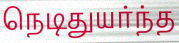
நெடிதுயர்ந்த